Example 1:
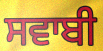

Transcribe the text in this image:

ਸਵਾਬੀ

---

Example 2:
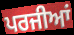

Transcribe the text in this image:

ਪਰਜੀਆਂ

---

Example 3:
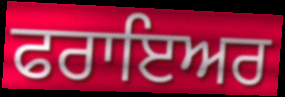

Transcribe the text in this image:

ਫਰਾਇਅਰ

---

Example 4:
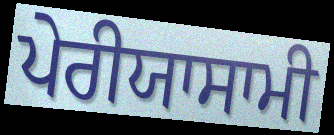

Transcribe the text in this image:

ਪੇਰੀਯਾਸਾਮੀ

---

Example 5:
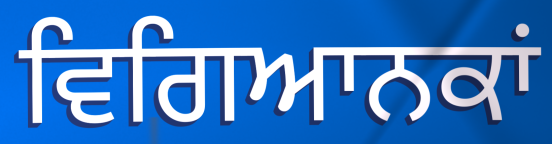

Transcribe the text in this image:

ਵਿਗਿਆਨਕਾਂ